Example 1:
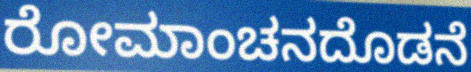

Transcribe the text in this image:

ರೋಮಾಂಚನದೊಡನೆ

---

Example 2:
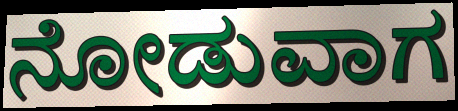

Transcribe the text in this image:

ನೋಡುವಾಗ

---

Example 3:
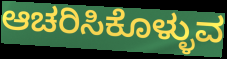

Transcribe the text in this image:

ಆಚರಿಸಿಕೊಳ್ಳುವ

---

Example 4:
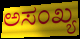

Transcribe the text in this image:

ಅಸಂಖ್ಯ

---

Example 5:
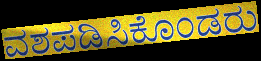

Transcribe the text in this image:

ವಶಪಡಿಸಿಕೊಂಡರು